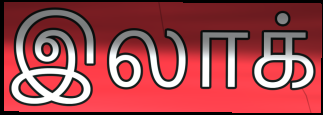
இலாக்